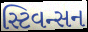
સ્ટિવન્સન